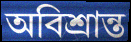
অবিশ্রান্ত